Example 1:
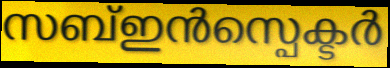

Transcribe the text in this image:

സബ്ഇൻസ്പെക്ടർ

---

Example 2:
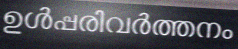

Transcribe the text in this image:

ഉൾപ്പരിവർത്തനം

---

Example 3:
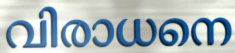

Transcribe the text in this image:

വിരാധനെ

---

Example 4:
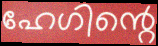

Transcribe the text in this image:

ഹേഗിന്റെ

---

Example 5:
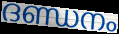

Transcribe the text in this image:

ദണ്ഡനം